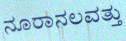
ನೂರಾನಲವತ್ತು